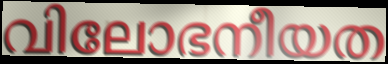
വിലോഭനീയത